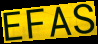
EFAS